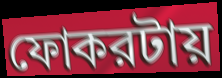
ফোকরটায়